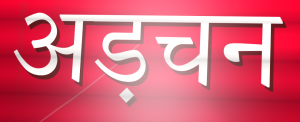
अड़चन